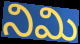
నిమి